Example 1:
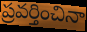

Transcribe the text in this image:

ప్రవర్తించినా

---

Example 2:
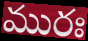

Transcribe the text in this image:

మురః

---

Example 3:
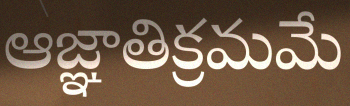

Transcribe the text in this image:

ఆజ్ఞాతిక్రమమే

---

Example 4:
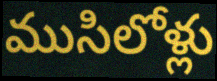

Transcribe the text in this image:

ముసిలోళ్లు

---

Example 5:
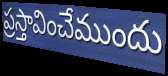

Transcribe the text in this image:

ప్రస్తావించేముందు